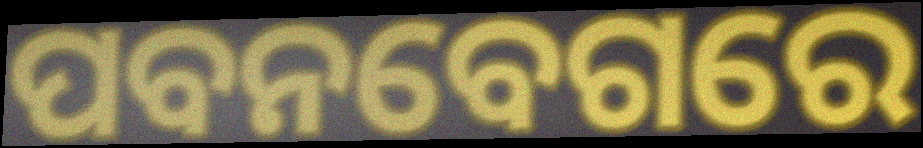
ପବନବେଗରେ